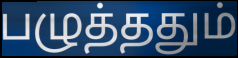
பழுத்ததும்